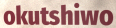
okutshiwo